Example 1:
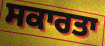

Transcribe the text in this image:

ਸਕਾਰਤਾ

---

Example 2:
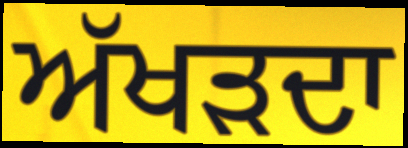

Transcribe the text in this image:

ਅੱਖੜਦਾ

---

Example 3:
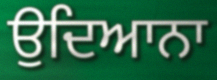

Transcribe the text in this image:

ਉਦਿਆਨਾ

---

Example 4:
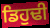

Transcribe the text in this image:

ਡਿਹੁਢੀ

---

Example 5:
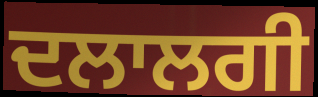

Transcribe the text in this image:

ਦਲਾਲਗੀ